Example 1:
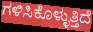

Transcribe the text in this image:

ಗಳಿಸಿಕೊಳ್ಳುತ್ತಿದೆ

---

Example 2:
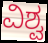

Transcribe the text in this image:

ವಿಶ್ವ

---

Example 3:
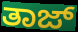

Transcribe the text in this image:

ತಾಜ್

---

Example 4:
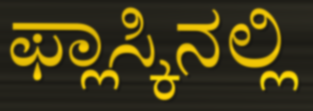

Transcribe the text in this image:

ಫ್ಲಾಸ್ಕಿನಲ್ಲಿ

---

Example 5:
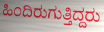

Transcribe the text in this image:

ಹಿಂದಿರುಗುತ್ತಿದ್ದರು